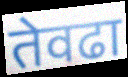
तेवढा